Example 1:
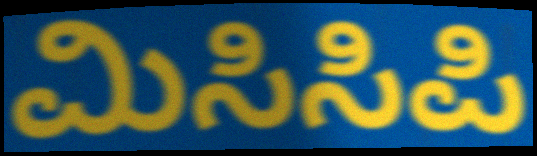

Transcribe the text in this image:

ಮಿಸಿಸಿಪಿ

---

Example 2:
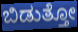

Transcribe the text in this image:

ಬಿಡುತ್ತೋ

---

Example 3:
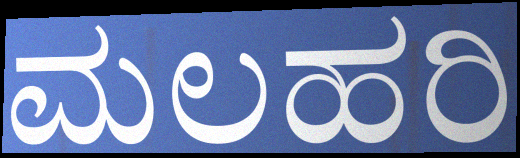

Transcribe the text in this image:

ಮಲಹರಿ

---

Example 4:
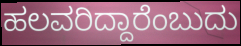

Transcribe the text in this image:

ಹಲವರಿದ್ದಾರೆಂಬುದು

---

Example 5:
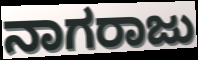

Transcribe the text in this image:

ನಾಗರಾಜು